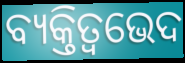
ବ୍ୟକ୍ତିତ୍ୱଭେଦ